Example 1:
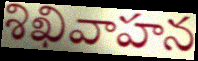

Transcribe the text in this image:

శిఖివాహన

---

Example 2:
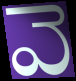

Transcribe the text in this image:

వె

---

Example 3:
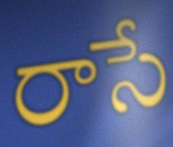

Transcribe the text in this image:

రాసే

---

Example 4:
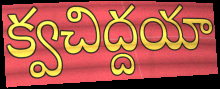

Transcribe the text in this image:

క్వచిద్దయా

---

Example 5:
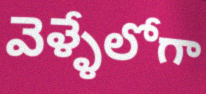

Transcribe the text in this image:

వెళ్ళేలోగా